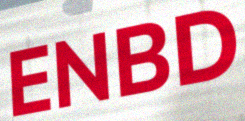
ENBD